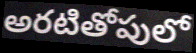
అరటితోపులో